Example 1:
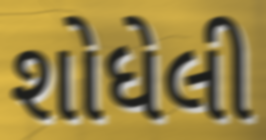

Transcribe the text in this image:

શોધેલી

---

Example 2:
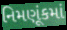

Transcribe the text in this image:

નિમણૂંકમાં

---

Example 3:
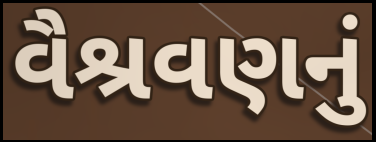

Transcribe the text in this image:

વૈશ્રવણનું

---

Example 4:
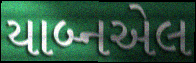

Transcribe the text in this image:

યાબ્નએલ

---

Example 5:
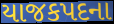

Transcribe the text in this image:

યાજકપદના